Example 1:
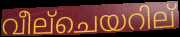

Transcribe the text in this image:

വീല്ചെയറില്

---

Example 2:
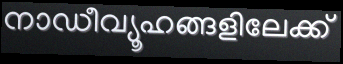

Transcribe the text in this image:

നാഡീവ്യൂഹങ്ങളിലേക്ക്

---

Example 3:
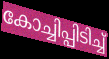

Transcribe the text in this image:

കോച്ചിപ്പിടിച്ച്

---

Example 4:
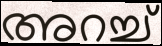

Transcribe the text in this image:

അറച്ച്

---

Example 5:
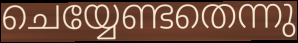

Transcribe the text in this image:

ചെയ്യേണ്ടതെന്നു